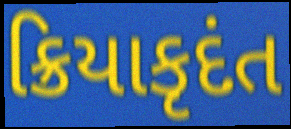
ક્રિયાકૃદંત